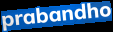
prabandho